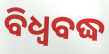
ବିଧ୍ଵବଦ୍ଧ